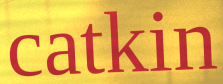
catkin